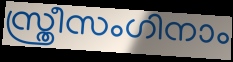
സ്ത്രീസംഗിനാം